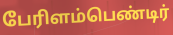
பேரிளம்பெண்டிர்